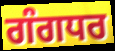
ਗੰਗਧਰ